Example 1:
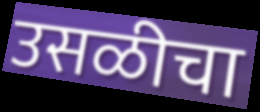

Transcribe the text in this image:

उसळीचा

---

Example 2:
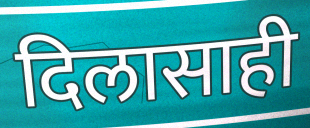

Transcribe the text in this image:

दिलासाही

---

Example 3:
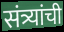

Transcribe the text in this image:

संत्र्यांची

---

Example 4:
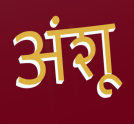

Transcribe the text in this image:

अंशू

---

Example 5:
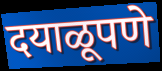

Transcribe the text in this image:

दयाळूपणे